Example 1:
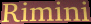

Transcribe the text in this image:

Rimini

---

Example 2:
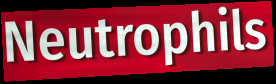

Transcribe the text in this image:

Neutrophils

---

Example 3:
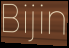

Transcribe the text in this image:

Bijin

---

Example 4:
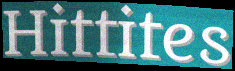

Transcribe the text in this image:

Hittites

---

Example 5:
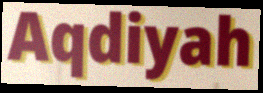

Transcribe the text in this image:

Aqdiyah